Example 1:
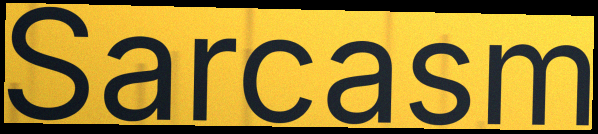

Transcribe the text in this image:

Sarcasm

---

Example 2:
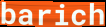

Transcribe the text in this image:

barich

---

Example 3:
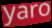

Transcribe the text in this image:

yaro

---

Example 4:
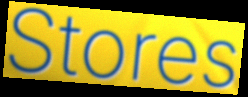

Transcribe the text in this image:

Stores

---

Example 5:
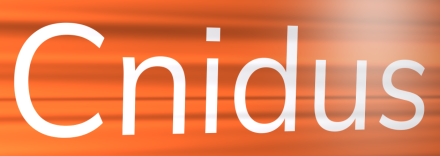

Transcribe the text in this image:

Cnidus